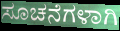
ಸೂಚನೆಗಳಾಗಿ